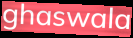
ghaswala